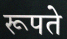
रूपते